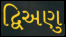
દ્વિઅણુ